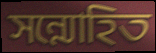
সন্মোহিত